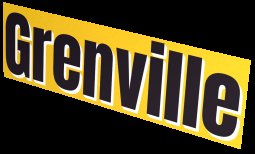
Grenville